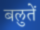
बलुतें